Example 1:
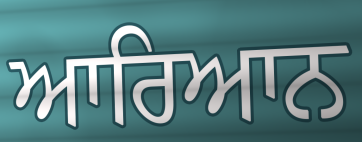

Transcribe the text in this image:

ਆਰਿਆਨ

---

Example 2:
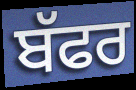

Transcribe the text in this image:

ਬੱਫਰ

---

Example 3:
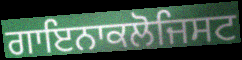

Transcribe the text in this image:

ਗਾਇਨਾਕਲੋਜਿਸਟ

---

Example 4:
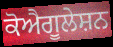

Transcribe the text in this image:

ਕੋਐਗੂਲੇਸ਼ਨ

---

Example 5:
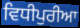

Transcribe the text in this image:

ਵਿਧੀਪੁਰੀਆ